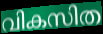
വികസിത